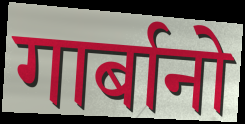
गार्बानो